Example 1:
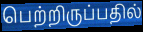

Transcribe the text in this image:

பெற்றிருப்பதில்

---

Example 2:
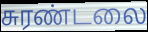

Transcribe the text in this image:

சுரண்டலை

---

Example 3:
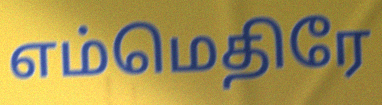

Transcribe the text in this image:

எம்மெதிரே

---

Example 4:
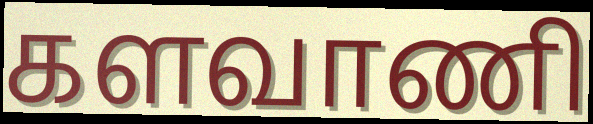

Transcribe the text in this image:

களவாணி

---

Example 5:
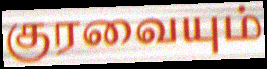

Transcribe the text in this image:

குரவையும்